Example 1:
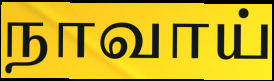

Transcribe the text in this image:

நாவாய்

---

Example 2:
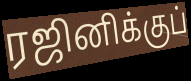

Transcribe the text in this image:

ரஜினிக்குப்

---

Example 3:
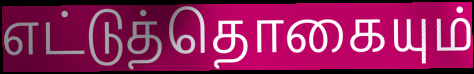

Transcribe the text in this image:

எட்டுத்தொகையும்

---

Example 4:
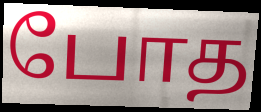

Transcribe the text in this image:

போத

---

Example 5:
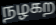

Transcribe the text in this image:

நழகற